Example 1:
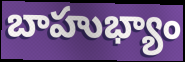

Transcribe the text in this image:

బాహుభ్యాం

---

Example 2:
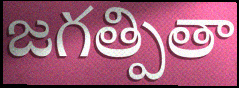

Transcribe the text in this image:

జగత్పితా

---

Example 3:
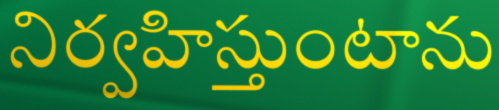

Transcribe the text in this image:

నిర్వహిస్తుంటాను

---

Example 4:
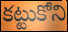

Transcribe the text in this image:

కట్టుకోని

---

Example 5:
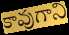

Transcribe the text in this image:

కావుగాని